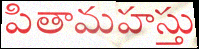
పితామహస్తు